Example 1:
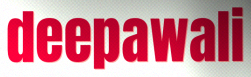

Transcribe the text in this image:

deepawali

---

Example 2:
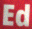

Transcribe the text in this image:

Ed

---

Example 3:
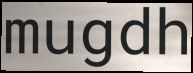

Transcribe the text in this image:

mugdh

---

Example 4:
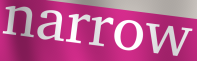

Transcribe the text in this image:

narrow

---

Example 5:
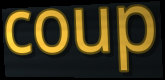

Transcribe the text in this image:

coup